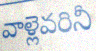
వాళ్లెవరినీ